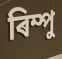
ৰিম্পু